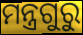
ମନ୍ତ୍ରଗୁରୁ